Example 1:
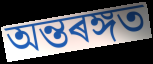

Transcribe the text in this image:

অন্তৰঙ্গত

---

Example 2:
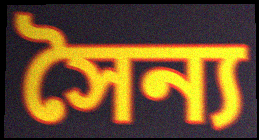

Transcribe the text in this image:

সৈন্য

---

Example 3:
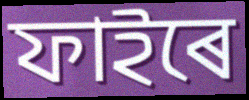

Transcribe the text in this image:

ফাইৰে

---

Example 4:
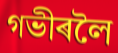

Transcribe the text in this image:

গভীৰলৈ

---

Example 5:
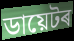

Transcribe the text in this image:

ডায়েটৰ